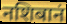
नशिबानं